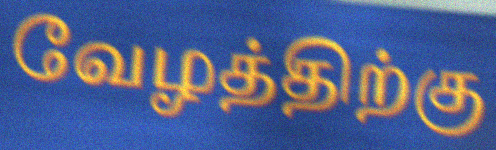
வேழத்திற்கு